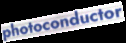
photoconductor